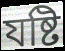
যষ্টি